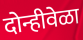
दोन्हीवेळा